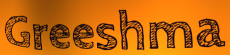
Greeshma